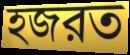
হজরত